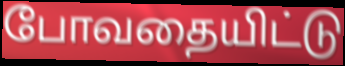
போவதையிட்டு